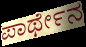
ಪಾರ್ಥೇನ